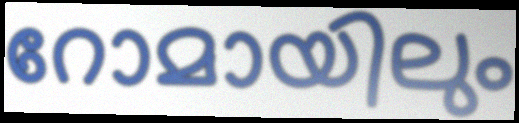
റോമായിലും